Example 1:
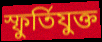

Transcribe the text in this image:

স্ফুর্তিযুক্ত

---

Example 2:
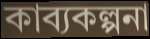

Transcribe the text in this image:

কাব্যকল্পনা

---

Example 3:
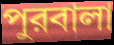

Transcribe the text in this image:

পুরবালা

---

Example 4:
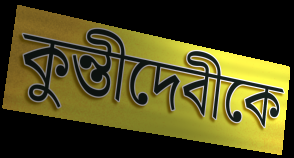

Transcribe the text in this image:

কুন্তীদেবীকে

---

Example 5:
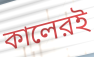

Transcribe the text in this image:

কালেরই